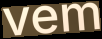
vem